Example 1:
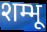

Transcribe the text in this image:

शम्भू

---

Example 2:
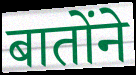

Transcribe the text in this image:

बातोंने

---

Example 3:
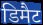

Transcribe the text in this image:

डिमैट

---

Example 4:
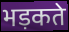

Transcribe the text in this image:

भड़कते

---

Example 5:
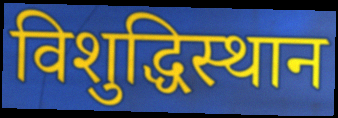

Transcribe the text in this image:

विशुद्धिस्थान